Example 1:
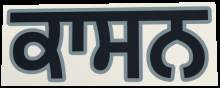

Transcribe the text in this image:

ਕਾਸਨ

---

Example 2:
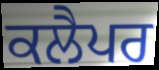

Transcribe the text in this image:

ਕਲੈਪਰ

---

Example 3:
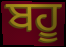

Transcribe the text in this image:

ਬਹੂ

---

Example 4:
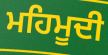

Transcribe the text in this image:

ਮਹਿਮੂਦੀ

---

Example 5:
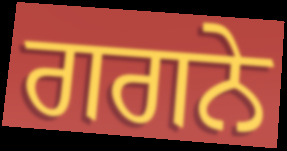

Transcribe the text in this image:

ਗਗਨੇ